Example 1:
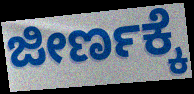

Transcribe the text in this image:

ಜೀರ್ಣಕ್ಕೆ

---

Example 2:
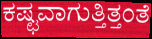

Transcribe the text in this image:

ಕಷ್ಟವಾಗುತ್ತಿತ್ತಂತೆ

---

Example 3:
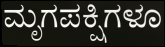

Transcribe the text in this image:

ಮೃಗಪಕ್ಷಿಗಳೂ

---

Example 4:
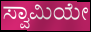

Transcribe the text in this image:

ಸ್ವಾಮಿಯೇ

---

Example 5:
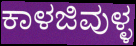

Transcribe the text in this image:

ಕಾಳಜಿವುಳ್ಳ